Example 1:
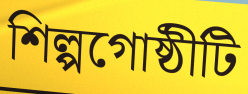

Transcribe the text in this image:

শিল্পগোষ্ঠীটি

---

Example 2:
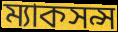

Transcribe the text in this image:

ম্যাকসন্স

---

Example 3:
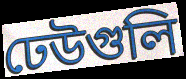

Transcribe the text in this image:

ঢেউগুলি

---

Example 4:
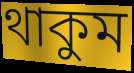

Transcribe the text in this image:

থাকুম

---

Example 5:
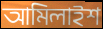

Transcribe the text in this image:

আমিলাইশ